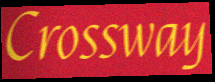
Crossway